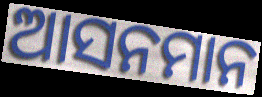
ଆସନମାନ